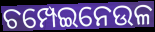
ଚମ୍ପେଇନେଉଳ